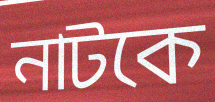
নাটকে